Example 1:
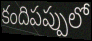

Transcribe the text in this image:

కందిపప్పులో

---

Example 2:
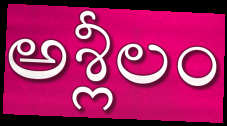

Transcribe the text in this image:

అశ్లీలం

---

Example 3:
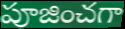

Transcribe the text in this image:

పూజించగా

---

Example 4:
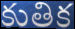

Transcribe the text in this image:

కుతిక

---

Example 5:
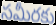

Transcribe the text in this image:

సమీరకు